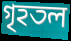
গৃহতল